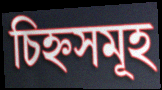
চিহ্নসমূহ